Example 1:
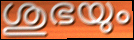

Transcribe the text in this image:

ശുഭയും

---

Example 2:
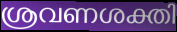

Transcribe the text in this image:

ശ്രവണശക്തി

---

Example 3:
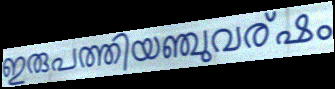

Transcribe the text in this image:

ഇരുപത്തിയഞ്ചുവര്ഷം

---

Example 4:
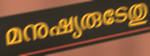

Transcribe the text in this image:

മനുഷ്യരുടേതു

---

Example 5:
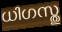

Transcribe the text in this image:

ധിഗസ്തു